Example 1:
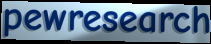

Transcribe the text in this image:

pewresearch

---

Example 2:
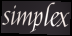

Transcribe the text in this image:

simplex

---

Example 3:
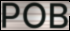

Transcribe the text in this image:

POB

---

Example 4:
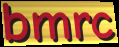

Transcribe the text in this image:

bmrc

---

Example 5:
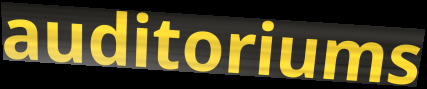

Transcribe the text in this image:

auditoriums